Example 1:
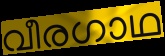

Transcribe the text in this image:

വീരഗാഥ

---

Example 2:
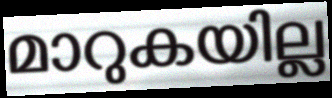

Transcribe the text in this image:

മാറുകയില്ല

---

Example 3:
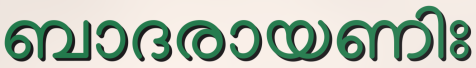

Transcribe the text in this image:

ബാദരായണിഃ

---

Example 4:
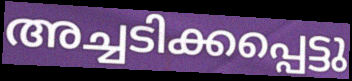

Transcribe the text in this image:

അച്ചടിക്കപ്പെട്ടു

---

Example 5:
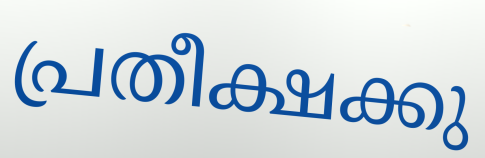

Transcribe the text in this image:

പ്രതീക്ഷക്കു